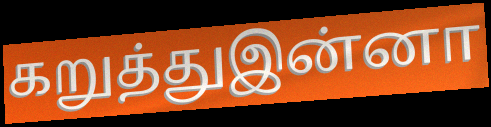
கறுத்துஇன்னா